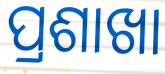
ପ୍ରଶାଖା